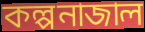
কল্পনাজাল